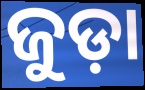
ଜୁଡ଼ା